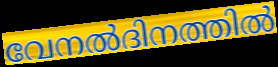
വേനൽദിനത്തിൽ